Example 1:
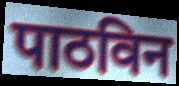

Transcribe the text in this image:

पाठविन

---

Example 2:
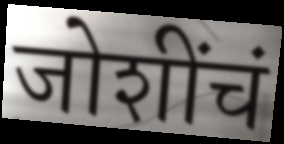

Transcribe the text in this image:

जोशींचं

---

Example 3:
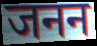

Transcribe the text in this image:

जनन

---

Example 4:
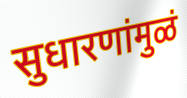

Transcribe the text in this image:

सुधारणांमुळं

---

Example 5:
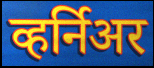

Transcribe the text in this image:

व्हर्निअर